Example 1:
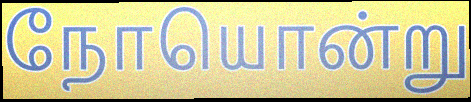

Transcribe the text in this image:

நோயொன்று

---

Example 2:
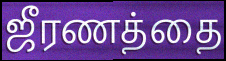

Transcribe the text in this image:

ஜீரணத்தை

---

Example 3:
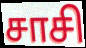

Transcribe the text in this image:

சாசி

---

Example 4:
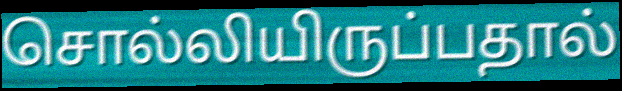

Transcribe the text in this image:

சொல்லியிருப்பதால்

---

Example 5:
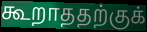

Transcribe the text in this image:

கூறாததற்குக்